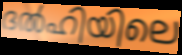
ദൽഹിയിലെ